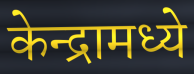
केन्द्रामध्ये